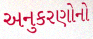
અનુકરણોનો